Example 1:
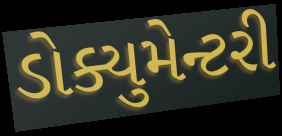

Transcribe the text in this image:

ડોક્યુમેન્ટરી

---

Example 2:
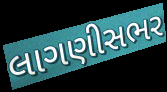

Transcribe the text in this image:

લાગણીસભર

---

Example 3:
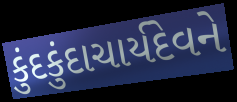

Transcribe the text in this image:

કુંદકુંદાચાર્યદેવને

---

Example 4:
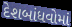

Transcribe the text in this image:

દેશબાંધવોમાં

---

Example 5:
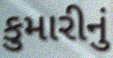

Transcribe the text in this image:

કુમારીનું